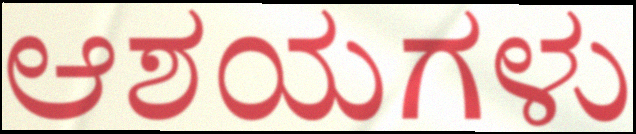
ಆಶಯಗಳು